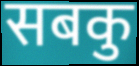
सबकु